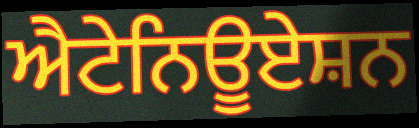
ਐਟੇਨਿਊਏਸ਼ਨ